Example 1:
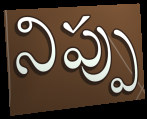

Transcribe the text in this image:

నిప్పు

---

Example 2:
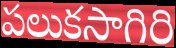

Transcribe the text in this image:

పలుకసాగిరి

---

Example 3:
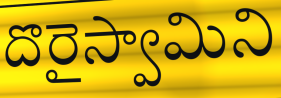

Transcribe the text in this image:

దొరైస్వామిని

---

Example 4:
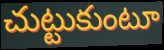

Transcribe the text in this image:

చుట్టుకుంటూ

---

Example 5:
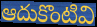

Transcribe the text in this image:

ఆదుకొంటివి